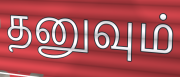
தனுவும்